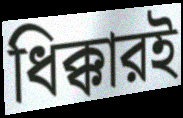
ধিক্কারই